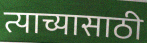
त्याच्यासाठी